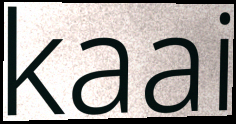
kaai